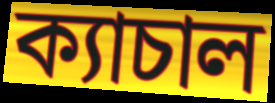
ক্যাচাল